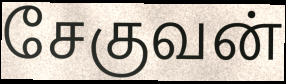
சேகுவன்